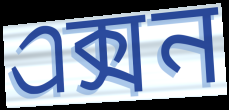
এক্সন